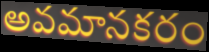
అవమానకరం